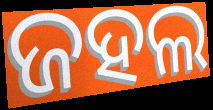
ଜହଲ